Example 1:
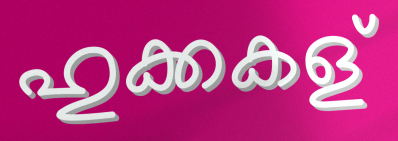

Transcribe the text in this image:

ഹുക്കകള്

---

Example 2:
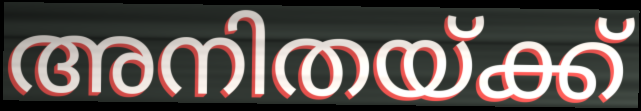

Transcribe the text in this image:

അനിതയ്ക്ക്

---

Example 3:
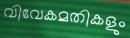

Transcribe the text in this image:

വിവേകമതികളും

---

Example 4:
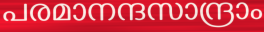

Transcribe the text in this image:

പരമാനന്ദസാന്ദ്രാം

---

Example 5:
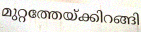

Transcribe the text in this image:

മുറ്റത്തേയ്ക്കിറങ്ങി